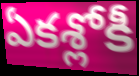
ఏకశ్లోకీ